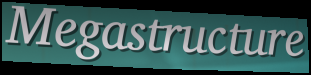
Megastructure